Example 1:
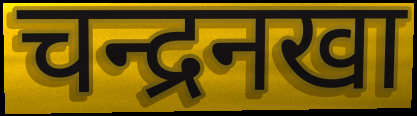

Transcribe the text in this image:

चन्द्रनखा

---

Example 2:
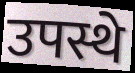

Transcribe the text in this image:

उपस्थे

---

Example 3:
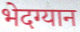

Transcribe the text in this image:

भेदग्यान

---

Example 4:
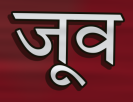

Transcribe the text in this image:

जूव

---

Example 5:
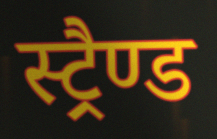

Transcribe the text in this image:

स्ट्रैण्ड